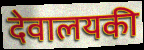
देवालयकी